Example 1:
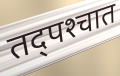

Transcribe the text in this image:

तद्पश्चात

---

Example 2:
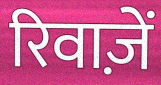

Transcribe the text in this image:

रिवाज़ें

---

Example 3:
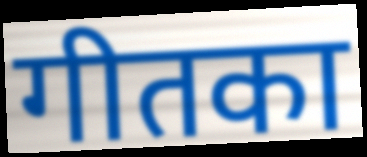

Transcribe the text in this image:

गीतका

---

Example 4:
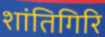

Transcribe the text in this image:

शांतिगिरि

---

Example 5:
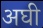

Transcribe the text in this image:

अघी